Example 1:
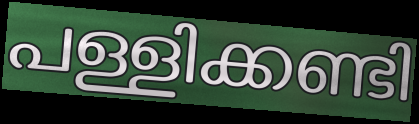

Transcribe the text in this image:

പള്ളിക്കണ്ടി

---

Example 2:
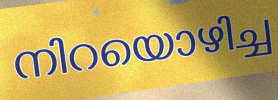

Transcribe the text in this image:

നിറയൊഴിച്ച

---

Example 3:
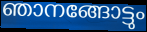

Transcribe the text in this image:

ഞാനങ്ങോട്ടും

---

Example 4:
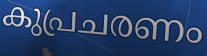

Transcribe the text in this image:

കുപ്രചരണം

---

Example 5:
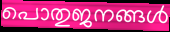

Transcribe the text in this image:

പൊതുജനങ്ങൾ